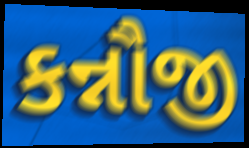
કન્નૌજી